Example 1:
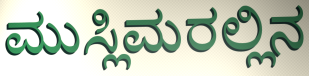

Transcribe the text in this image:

ಮುಸ್ಲಿಮರಲ್ಲಿನ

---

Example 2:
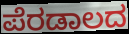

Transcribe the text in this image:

ಪೆರಡಾಲದ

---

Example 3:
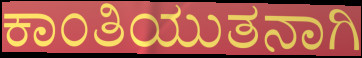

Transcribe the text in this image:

ಕಾಂತಿಯುತನಾಗಿ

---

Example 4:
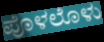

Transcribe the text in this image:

ಪೊಳಲೊಳು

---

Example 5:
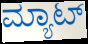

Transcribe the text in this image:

ಮ್ಯಾಟ್